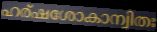
ഹര്ഷശോകാന്വിതഃ